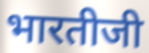
भारतीजी